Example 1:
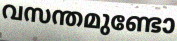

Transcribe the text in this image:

വസന്തമുണ്ടോ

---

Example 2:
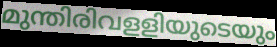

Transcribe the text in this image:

മുന്തിരിവളളിയുടെയും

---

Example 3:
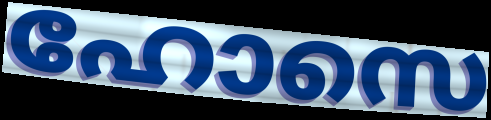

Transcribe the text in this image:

ഹോസെ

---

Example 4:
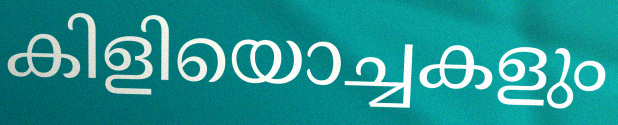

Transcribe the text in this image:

കിളിയൊച്ചകളും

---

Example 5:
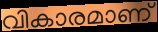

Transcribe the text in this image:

വികാരമാണ്